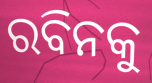
ରବିନକୁ